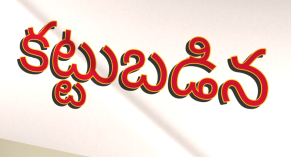
కట్టుబడిన